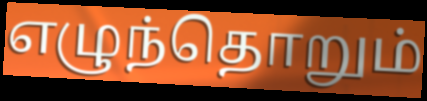
எழுந்தொறும்